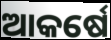
ଆକର୍ଷେ